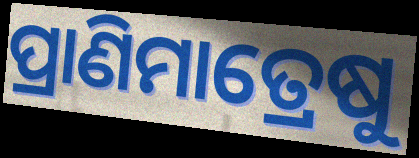
ପ୍ରାଣିମାତ୍ରେଷୁ